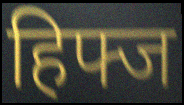
हिफ्ज